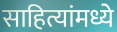
साहित्यांमध्ये